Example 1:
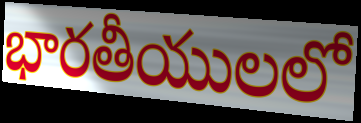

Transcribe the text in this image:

భారతీయులలో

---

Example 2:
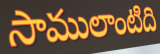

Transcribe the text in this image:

సాములాంటిది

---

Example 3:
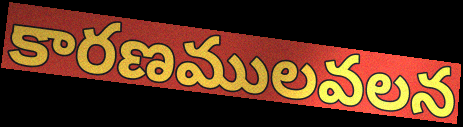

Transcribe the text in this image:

కారణములవలన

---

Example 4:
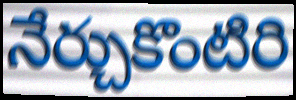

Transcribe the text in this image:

నేర్చుకొంటిరి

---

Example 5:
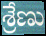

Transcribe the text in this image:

శ్రేణు